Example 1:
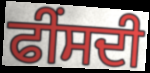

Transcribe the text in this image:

ਫੀਂਸਦੀ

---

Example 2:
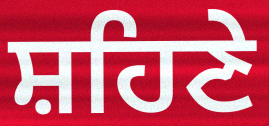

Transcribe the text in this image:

ਸ਼ਹਿਣੇ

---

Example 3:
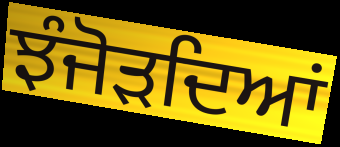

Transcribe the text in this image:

ਝੰਜੋੜਦਿਆਂ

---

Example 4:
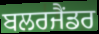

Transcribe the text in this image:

ਬਲਰਜੈਂਡਰ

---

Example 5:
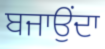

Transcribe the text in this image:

ਬਜਾਉਂਦਾ